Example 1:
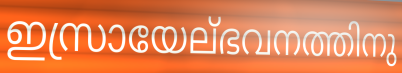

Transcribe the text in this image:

ഇസ്രായേല്ഭവനത്തിനു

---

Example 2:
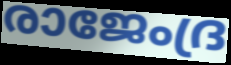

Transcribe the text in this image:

രാജേംദ്ര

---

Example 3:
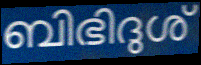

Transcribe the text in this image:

ബിഭിദുശ്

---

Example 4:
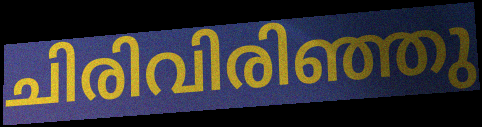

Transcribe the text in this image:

ചിരിവിരിഞ്ഞു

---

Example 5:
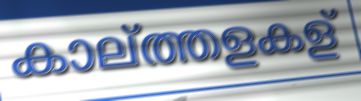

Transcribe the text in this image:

കാല്ത്തളകള്